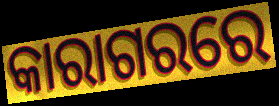
କାରାଗରରେ